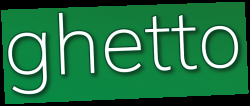
ghetto